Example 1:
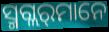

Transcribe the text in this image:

ସ୍ମଗ୍ଲର୍‌ମାନେ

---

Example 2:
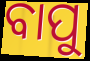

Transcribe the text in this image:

ବାପୁ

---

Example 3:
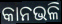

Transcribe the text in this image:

କାନଭଳି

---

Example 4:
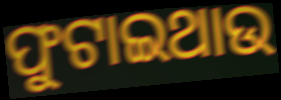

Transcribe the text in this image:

ଫୁଟାଇଥାଉ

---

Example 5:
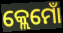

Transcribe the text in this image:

କ୍ଲେମୋଁ